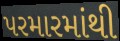
પરમારમાંથી